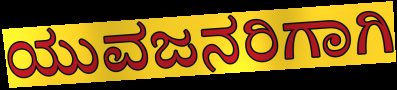
ಯುವಜನರಿಗಾಗಿ